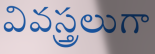
వివస్త్రలుగా